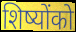
शिष्योंको